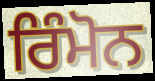
ਰਿੰਮੋਨ